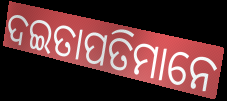
ଦଇତାପତିମାନେ